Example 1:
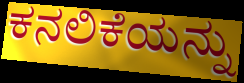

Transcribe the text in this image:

ಕನಲಿಕೆಯನ್ನು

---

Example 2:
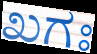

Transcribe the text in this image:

ಖಗಃ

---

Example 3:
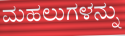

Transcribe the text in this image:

ಮಹಲುಗಳನ್ನು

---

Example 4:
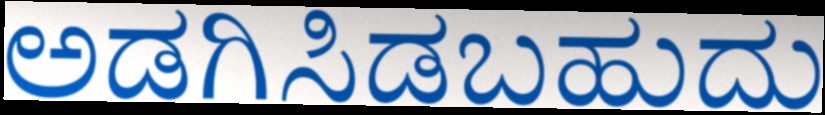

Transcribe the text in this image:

ಅಡಗಿಸಿಡಬಹುದು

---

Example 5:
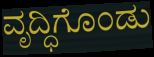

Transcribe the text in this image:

ವೃದ್ಧಿಗೊಂಡು